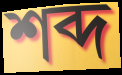
শব্দ